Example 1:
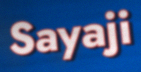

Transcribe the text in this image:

Sayaji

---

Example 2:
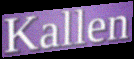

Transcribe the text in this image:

Kallen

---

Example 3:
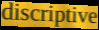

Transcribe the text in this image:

discriptive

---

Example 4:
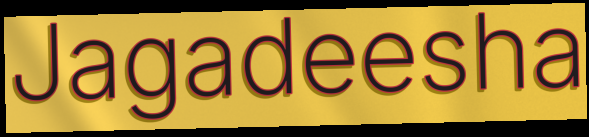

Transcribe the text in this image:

Jagadeesha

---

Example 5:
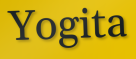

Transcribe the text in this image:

Yogita